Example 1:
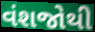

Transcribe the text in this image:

વંશજોથી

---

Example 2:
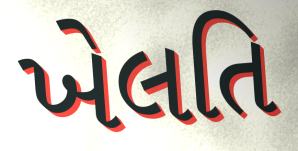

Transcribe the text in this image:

ખેલતિ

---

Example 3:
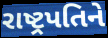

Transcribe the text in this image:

રાષ્ટ્રપતિને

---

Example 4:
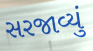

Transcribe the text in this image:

સરજાવ્યું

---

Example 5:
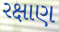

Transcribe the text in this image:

રક્ષાણ